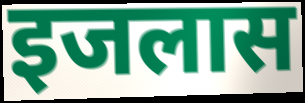
इजलास